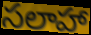
సలాహా